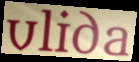
ulida